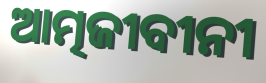
ଆତ୍ମଜୀବୀନୀ